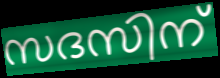
സദസിന്